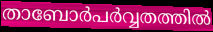
താബോർപർവ്വതത്തിൽ